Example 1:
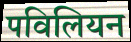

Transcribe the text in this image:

पविलियन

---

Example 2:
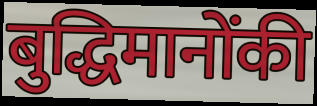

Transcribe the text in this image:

बुद्धिमानोंकी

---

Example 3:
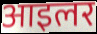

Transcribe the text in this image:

आइलर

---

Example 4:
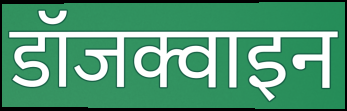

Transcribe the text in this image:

डॉजक्वाइन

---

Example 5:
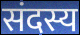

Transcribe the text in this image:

संदस्य